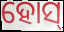
ହୋସ୍